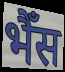
भैँस